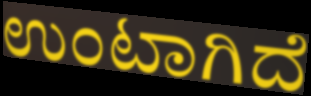
ಉಂಟಾಗಿದೆ